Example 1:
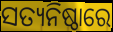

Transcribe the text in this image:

ସତ୍ୟନିଷ୍ଠାରେ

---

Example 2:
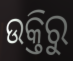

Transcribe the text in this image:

ଉକ୍ତିରୁ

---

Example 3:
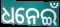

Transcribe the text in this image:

ଧନେଇଁ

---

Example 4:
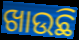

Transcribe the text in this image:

ଖାଉଛି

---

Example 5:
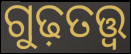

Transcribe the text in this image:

ଗୁଢ଼ତତ୍ତ୍ୱ